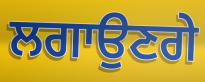
ਲਗਾਉਣਗੇ